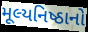
મૂલ્યનિષ્ઠાનો